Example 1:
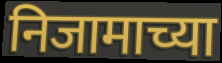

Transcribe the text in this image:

निजामाच्या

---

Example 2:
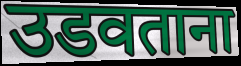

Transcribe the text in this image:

उडवताना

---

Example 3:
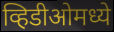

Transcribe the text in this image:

व्हिडीओमध्ये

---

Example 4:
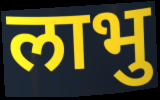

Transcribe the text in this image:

लाभु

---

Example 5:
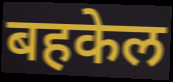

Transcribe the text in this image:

बहकेल